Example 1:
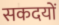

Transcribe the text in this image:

सकदयों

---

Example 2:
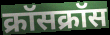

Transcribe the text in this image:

क्रॉसक्रॉस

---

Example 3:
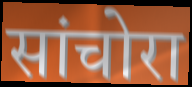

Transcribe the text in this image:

सांचोरा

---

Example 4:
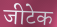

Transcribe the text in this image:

जीटेक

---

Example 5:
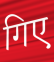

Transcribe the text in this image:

गिए